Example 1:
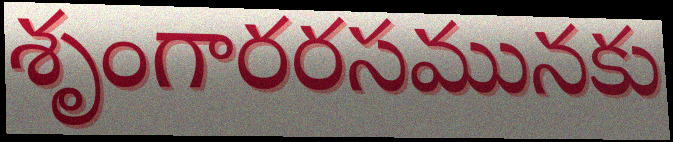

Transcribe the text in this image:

శృంగారరసమునకు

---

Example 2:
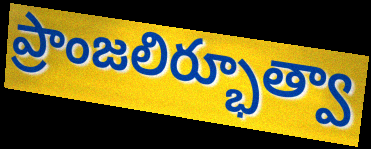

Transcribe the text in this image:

ప్రాంజలిర్భూత్వా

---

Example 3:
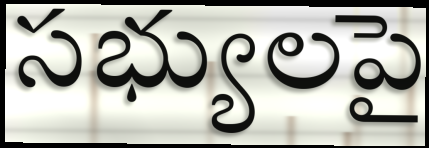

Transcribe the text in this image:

సభ్యులపై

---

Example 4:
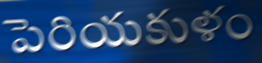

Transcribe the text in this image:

పెరియకుళం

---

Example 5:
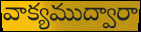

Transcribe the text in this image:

వాక్యముద్వారా